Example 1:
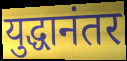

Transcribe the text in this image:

युद्धानंतर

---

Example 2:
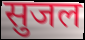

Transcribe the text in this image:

सुजल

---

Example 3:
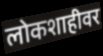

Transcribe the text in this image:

लोकशाहीवर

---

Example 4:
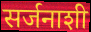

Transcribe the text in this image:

सर्जनाशी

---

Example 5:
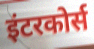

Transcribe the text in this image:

इंटरकोर्स